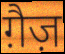
ग़ैज़